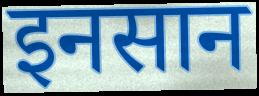
इनसान